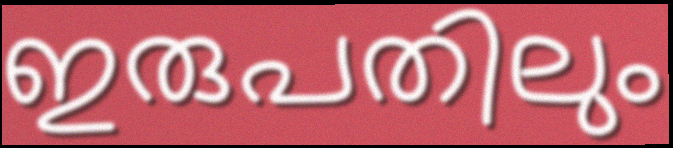
ഇരുപതിലും